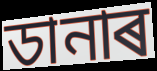
ডানাৰ